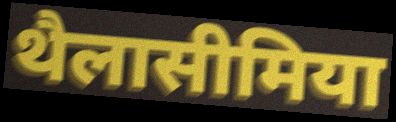
थैलासीमिया